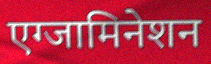
एग्‍जामिनेशन